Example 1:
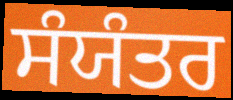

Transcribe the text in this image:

ਸੰਯੰਤਰ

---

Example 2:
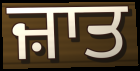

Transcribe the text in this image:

ਜ਼ਾਤ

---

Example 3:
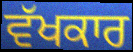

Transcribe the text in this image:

ਵੱਖਕਾਰ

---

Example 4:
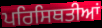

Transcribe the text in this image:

ਪਰਿਸਿਥਤੀਆਂ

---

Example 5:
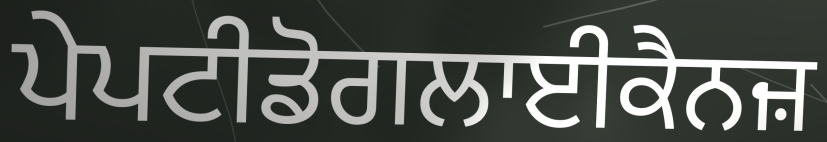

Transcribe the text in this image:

ਪੇਪਟੀਡੋਗਲਾਈਕੈਨਜ਼